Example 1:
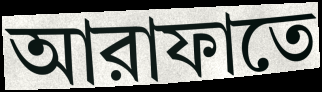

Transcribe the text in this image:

আরাফাতে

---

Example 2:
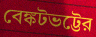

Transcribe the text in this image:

বেঙ্কটভট্টের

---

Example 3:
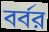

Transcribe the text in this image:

বর্বর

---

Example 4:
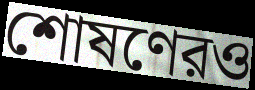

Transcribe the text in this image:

শোষণেরও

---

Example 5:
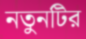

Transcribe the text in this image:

নতুনটির